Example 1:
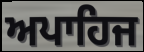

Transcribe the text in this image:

ਅਪਾਹਿਜ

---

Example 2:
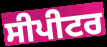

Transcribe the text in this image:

ਸੀਪੀਟਰ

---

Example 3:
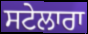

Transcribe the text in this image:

ਸਟੇਲਾਰਾ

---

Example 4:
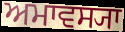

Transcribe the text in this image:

ਅਮਾਵਸ੍ਯਾ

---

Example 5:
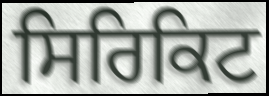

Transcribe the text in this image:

ਸਿਰਿਕਿਟ